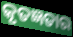
କୃତଜ୍ଞତାର